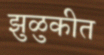
झुळुकीत